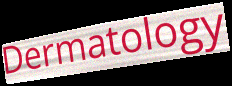
Dermatology